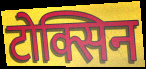
टोक्सिन